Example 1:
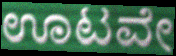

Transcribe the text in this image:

ಊಟವೇ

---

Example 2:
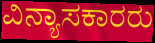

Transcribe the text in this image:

ವಿನ್ಯಾಸಕಾರರು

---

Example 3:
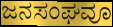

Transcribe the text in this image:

ಜನಸಂಘವೂ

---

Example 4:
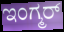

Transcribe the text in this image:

ಇಂಗ್ಮರ್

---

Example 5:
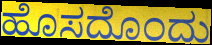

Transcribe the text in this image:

ಹೊಸದೊಂದು